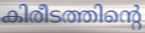
കിരീടത്തിന്റെ